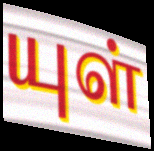
யுள்